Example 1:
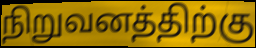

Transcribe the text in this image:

நிறுவனத்திற்கு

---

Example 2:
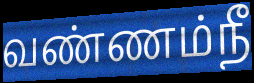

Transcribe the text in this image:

வண்ணம்நீ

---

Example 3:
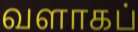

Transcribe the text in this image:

வளாகப்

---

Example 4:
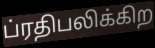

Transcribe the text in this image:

ப்ரதிபலிக்கிற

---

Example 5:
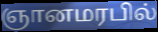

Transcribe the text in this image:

ஞானமரபில்